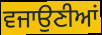
ਵਜਾਉਣੀਆਂ